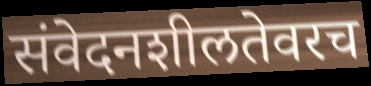
संवेदनशीलतेवरच